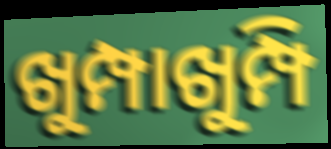
ଖୁମ୍ପାଖୁମ୍ପି